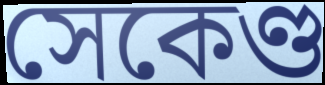
সেকেণ্ড